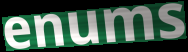
enums